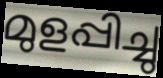
മുളപ്പിച്ചു